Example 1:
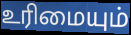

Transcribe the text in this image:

உரிமையும்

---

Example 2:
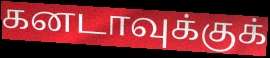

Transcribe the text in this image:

கனடாவுக்குக்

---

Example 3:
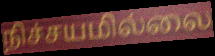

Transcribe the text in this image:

நிச்சயமில்லை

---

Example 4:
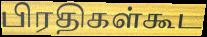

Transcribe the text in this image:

பிரதிகள்கூட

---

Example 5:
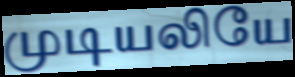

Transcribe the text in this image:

முடியலியே